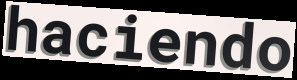
haciendo